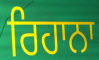
ਰਿਹਾਨਾ